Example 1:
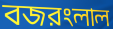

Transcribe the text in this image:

বজরংলাল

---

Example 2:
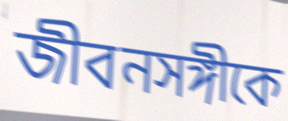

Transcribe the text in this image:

জীবনসঙ্গীকে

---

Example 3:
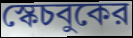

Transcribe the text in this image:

স্কেচবুকের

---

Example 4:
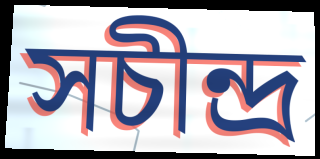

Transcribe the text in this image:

সচীন্দ্র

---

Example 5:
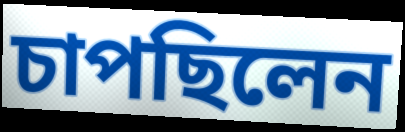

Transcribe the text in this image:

চাপছিলেন